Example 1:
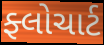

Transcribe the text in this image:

ફ્લોચાર્ટ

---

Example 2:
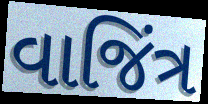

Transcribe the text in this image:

વાજિંત્ર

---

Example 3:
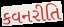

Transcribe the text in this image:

કવનરીતિ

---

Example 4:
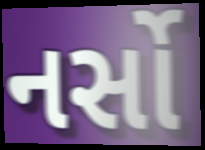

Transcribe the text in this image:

નર્સો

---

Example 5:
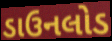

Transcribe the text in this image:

ડાઉનલોડ